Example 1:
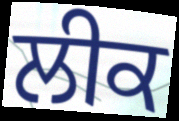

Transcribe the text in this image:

ਲੀਕ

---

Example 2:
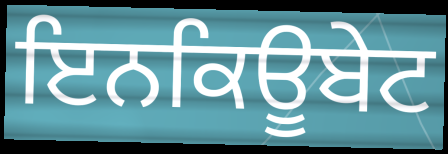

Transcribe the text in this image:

ਇਨਕਿਊਬੇਟ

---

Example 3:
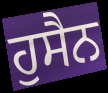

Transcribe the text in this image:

ਹੁਸੈਨ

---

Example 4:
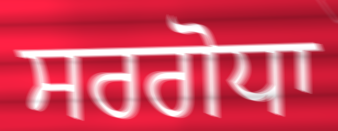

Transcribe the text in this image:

ਸਰਗੋਧਾ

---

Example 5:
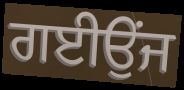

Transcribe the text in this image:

ਗਈਉਂਜ